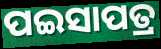
ପଇସାପତ୍ର